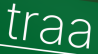
traa